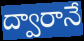
ద్వారానే